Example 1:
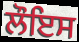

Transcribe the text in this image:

ਲੌਇਸ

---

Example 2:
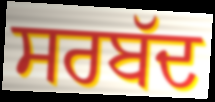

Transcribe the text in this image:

ਸਰਬੱਦ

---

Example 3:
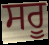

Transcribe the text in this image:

ਸਰੂ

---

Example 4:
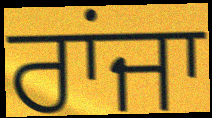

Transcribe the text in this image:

ਰਾਂਜਾ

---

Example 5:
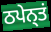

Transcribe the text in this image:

ਠਪੇਨ੍ਤਂ